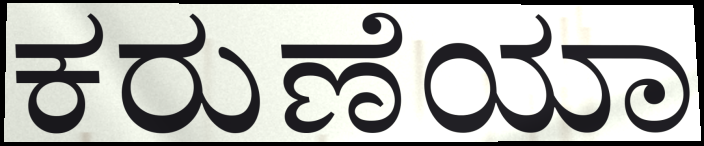
ಕರುಣೆಯಾ